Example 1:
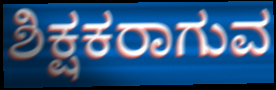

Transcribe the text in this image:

ಶಿಕ್ಷಕರಾಗುವ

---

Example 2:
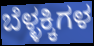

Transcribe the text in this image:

ಬೆಳ್ಳಕ್ಕಿಗಳ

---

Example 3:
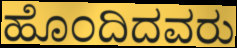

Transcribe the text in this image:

ಹೊಂದಿದವರು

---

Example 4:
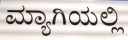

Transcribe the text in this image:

ಮ್ಯಾಗಿಯಲ್ಲಿ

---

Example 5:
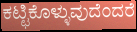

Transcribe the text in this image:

ಕಟ್ಟಿಕೊಳ್ಳುವುದೆಂದರೆ